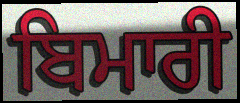
ਬਿਮਾਰੀ